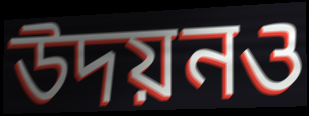
উদয়নও